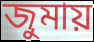
জুমায়